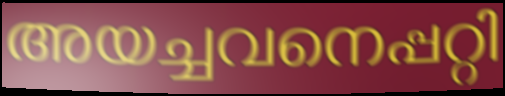
അയച്ചവനെപ്പറ്റി